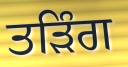
ਤੜਿੰਗ